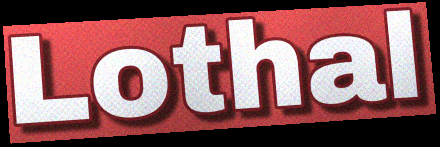
Lothal